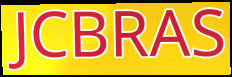
JCBRAS